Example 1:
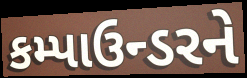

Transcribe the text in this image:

કમ્પાઉન્ડરને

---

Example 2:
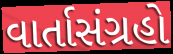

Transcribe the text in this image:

વાર્તાસંગ્રહો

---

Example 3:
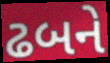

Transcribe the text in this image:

ઢબને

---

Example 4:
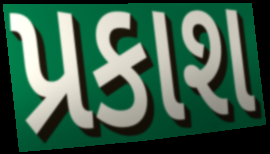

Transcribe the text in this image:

પ્રકાશ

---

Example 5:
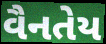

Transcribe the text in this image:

વૈનતેય